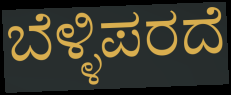
ಬೆಳ್ಳಿಪರದೆ